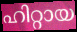
ഹിറ്റായ